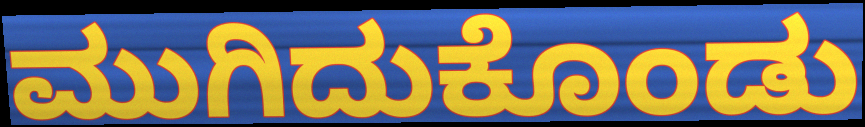
ಮುಗಿದುಕೊಂಡು